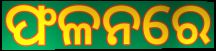
ଫଳନରେ